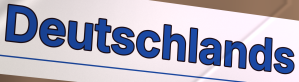
Deutschlands